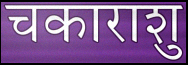
चकाराशु